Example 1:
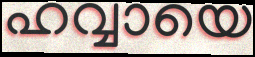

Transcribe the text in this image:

ഹവ്വായെ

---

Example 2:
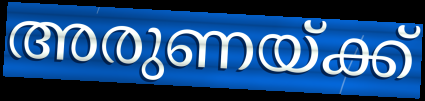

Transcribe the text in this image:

അരുണയ്ക്ക്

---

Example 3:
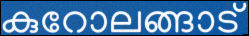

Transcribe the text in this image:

കുറോലങ്ങാട്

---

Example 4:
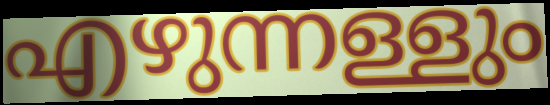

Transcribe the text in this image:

എഴുന്നള്ളും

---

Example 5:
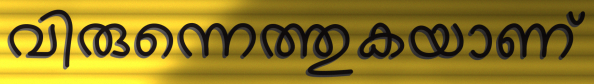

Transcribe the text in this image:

വിരുന്നെത്തുകയാണ്